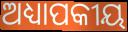
ଅଧ୍ୟାପକୀୟ